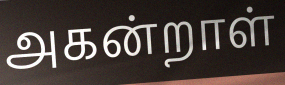
அகன்றாள்